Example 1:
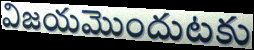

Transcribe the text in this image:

విజయమొందుటకు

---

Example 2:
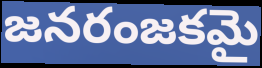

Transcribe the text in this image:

జనరంజకమై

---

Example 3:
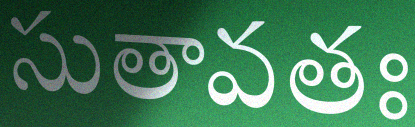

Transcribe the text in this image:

సుతావతః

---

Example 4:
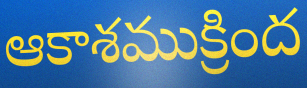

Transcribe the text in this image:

ఆకాశముక్రింద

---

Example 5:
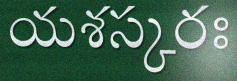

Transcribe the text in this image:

యశస్కరః